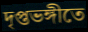
দৃপ্তভঙ্গীতে